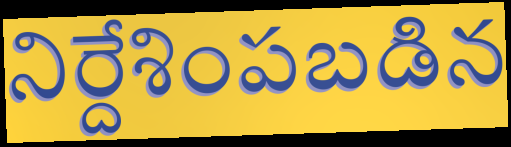
నిర్దేశింపబడిన